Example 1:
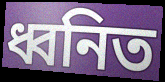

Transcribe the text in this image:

ধ্বনিত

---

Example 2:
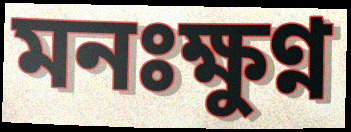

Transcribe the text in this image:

মনঃক্ষুণ্ন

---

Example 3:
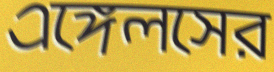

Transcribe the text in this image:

এঙ্গেলসের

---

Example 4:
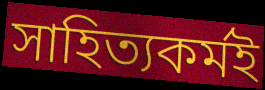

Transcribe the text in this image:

সাহিত্যকর্মই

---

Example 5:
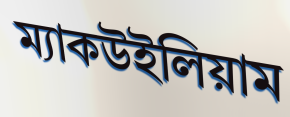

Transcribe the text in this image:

ম্যাকউইলিয়াম